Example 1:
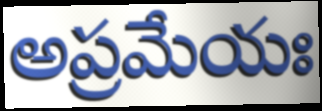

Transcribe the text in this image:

అప్రమేయః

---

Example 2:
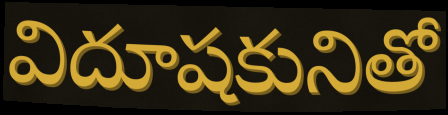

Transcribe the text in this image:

విదూషకునితో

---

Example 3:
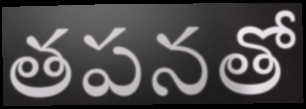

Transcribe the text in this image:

తపనతో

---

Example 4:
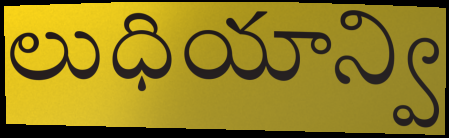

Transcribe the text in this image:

లుధియాన్వి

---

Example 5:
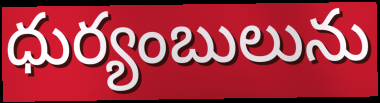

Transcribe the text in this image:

ధుర్యంబులును